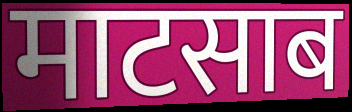
माटसाब